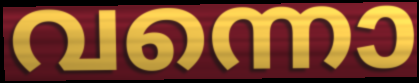
വന്നൊ